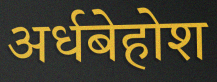
अर्धबेहोश